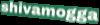
shivamogga